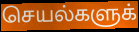
செயல்களுக்